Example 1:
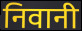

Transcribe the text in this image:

निवानी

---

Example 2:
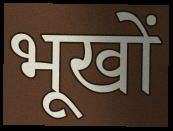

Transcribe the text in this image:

भूखों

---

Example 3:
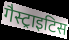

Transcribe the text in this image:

गैस्ट्राइटिस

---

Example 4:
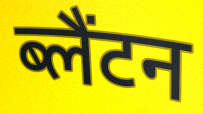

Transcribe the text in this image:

ब्लैंटन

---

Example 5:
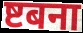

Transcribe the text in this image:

ष्टबना